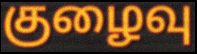
குழைவு